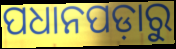
ପଧାନପଡ଼ାରୁ